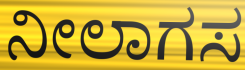
ನೀಲಾಗಸ